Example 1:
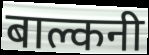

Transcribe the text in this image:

बाल्कनी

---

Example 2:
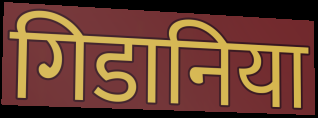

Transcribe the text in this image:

गिडानिया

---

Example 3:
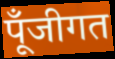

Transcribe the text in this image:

पूँजीगत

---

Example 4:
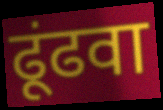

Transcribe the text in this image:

ढूंढवा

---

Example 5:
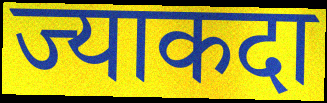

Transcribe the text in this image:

ज्याकदा